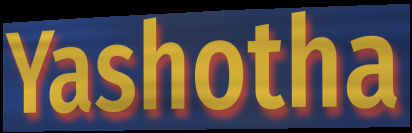
Yashotha